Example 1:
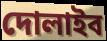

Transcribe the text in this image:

দোলাইব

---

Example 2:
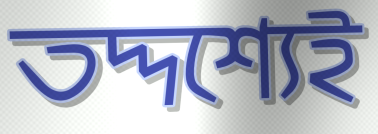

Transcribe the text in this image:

তদ্দশ্যেই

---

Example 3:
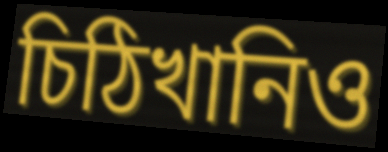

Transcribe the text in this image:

চিঠিখানিও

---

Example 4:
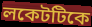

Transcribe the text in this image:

লকেটটিকে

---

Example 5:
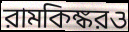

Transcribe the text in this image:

রামকিঙ্করও